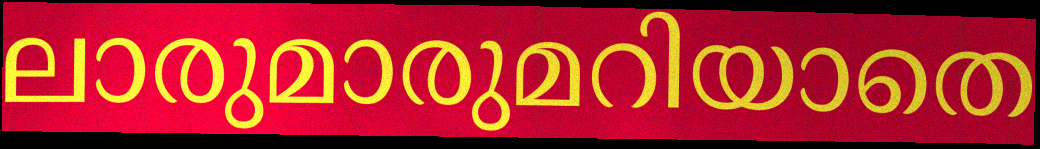
ലാരുമാരുമറിയാതെ